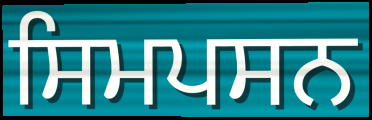
ਸਿਮਪਸਨ